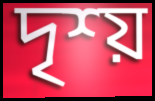
দৃশ্য়